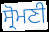
ਸ੍ਰੋਮਣੀ